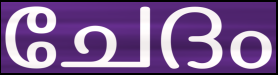
ചേദം